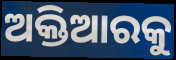
ଅକ୍ତିଆରକୁ